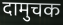
दामुचक